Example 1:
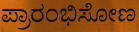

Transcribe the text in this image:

ಪ್ರಾರಂಭಿಸೋಣ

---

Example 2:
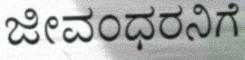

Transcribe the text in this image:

ಜೀವಂಧರನಿಗೆ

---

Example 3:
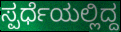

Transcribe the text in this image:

ಸ್ಪರ್ಧೆಯಲ್ಲಿದ್ದ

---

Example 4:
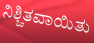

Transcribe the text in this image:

ನಿಶ್ಚಿತವಾಯಿತು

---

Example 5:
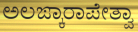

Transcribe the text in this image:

ಅಲಙ್ಕಾರಾಪೇತ್ವಾ